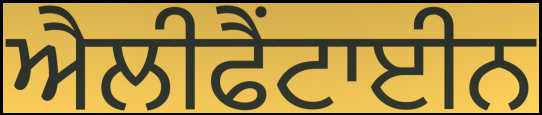
ਐਲੀਫੈਂਟਾਈਨ